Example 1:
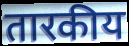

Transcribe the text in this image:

तारकीय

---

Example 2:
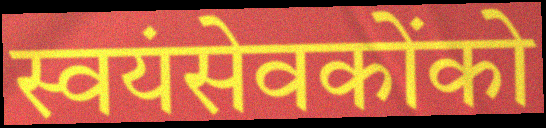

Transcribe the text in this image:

स्वयंसेवकोंको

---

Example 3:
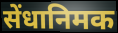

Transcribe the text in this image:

सेंधानिमक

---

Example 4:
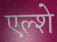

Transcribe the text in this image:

एल्शे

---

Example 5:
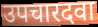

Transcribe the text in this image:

उपचारदवा